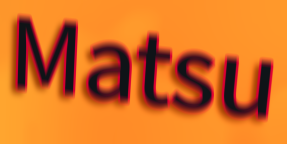
Matsu